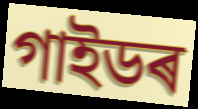
গাইডৰ